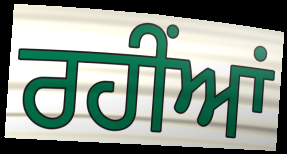
ਰਹੀਂਆਂ